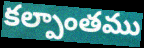
కల్పాంతము